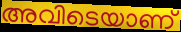
അവിടെയാണ്